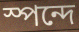
স্পন্দে